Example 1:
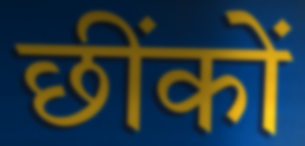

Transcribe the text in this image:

छींकों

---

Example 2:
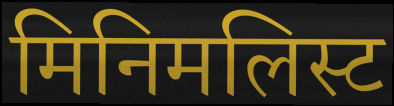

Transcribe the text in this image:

मिनिमलिस्ट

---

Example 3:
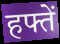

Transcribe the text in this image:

हफ्तें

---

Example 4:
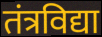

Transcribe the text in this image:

तंत्रविद्या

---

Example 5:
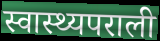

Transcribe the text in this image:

स्वास्थ्यपराली